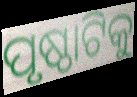
ପୃଷ୍ଠାଟିକୁ